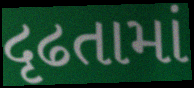
દૃઢતામાં